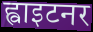
ह्वाइटनर